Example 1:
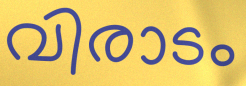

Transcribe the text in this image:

വിരാടം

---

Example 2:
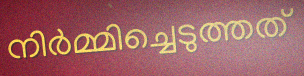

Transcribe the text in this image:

നിർമ്മിച്ചെടുത്തത്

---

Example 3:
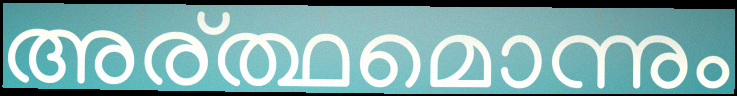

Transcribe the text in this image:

അര്ത്ഥമൊന്നും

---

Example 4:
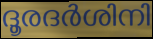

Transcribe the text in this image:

ദൂരദർശിനി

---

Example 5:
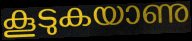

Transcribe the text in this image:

കൂടുകയാണു